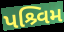
પશ્ર્વિમ